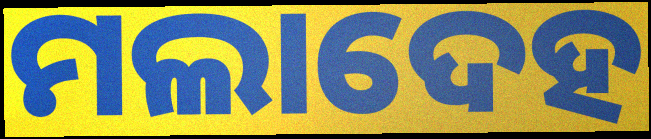
ମଲାଦେହ